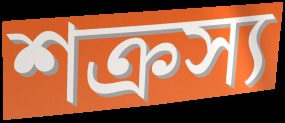
শক্রস্য